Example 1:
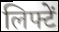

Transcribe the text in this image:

लिफ्टें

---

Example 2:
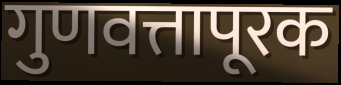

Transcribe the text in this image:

गुणवत्तापूरक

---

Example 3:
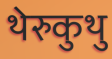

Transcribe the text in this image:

थेरुकुथु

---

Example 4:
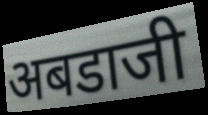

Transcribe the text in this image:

अबडाजी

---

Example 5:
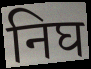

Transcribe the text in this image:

निघ